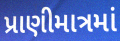
પ્રાણીમાત્રમાં